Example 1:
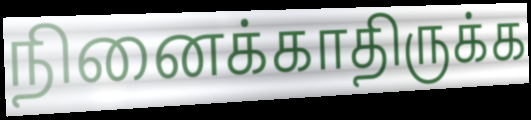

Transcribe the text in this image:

நினைக்காதிருக்க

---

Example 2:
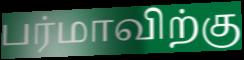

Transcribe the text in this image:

பர்மாவிற்கு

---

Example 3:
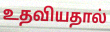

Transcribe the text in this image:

உதவியதால்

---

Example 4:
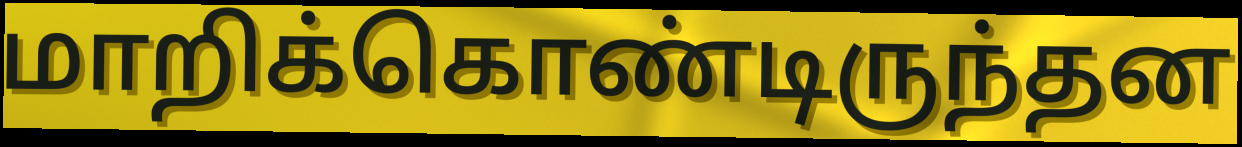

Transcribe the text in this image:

மாறிக்கொண்டிருந்தன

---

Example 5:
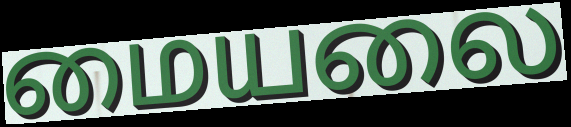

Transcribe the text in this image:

மையலை